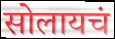
सोलायचं